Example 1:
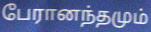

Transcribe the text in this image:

பேரானந்தமும்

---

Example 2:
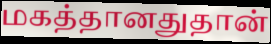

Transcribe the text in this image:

மகத்தானதுதான்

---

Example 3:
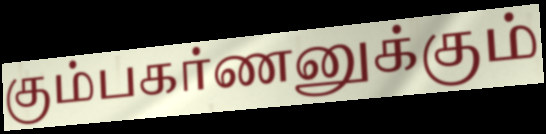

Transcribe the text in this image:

கும்பகர்ணனுக்கும்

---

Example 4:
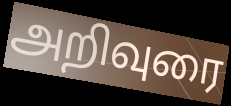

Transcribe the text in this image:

அறிவுரை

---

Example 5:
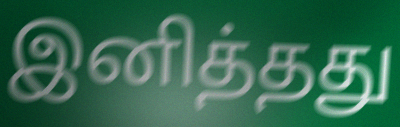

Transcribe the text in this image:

இனித்தது